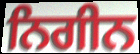
ਨਿਗੀਨ